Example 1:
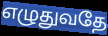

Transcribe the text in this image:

எழுதுவதே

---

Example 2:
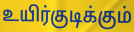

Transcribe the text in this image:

உயிர்குடிக்கும்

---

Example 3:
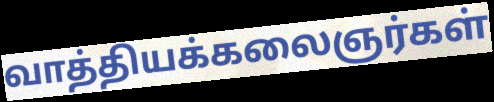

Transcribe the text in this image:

வாத்தியக்கலைஞர்கள்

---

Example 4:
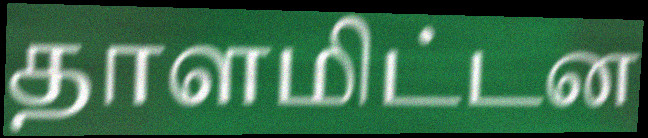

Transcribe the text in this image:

தாளமிட்டன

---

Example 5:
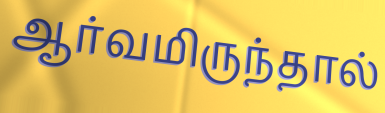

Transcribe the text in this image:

ஆர்வமிருந்தால்